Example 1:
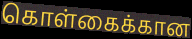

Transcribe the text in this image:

கொள்கைக்கான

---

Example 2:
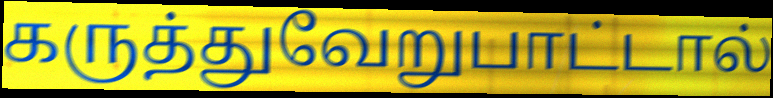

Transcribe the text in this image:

கருத்துவேறுபாட்டால்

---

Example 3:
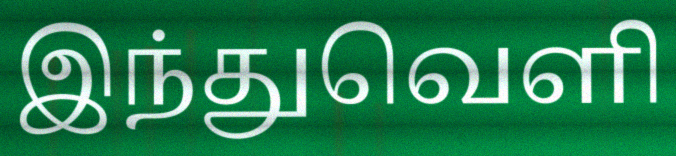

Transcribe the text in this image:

இந்துவெளி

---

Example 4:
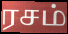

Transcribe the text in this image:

ரசம்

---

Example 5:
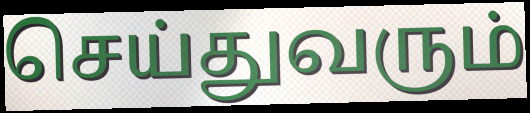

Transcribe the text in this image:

செய்துவரும்